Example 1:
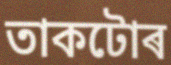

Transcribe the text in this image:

তাকটোৰ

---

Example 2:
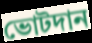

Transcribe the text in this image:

ভোটদান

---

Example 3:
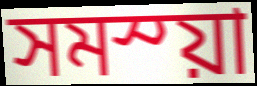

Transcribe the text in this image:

সমস্য়া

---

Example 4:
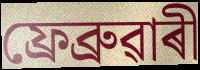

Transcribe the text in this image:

ফ্ৰেব্ৰুৱাৰী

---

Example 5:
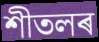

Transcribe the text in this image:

শীতলৰ